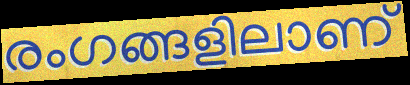
രംഗങ്ങളിലാണ്